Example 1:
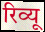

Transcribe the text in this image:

रिव्‍यू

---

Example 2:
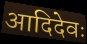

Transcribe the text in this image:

आदिदेवः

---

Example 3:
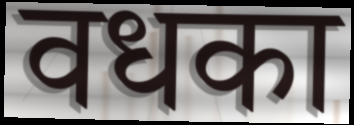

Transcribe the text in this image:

वधका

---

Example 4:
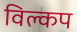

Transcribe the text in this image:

विल्कप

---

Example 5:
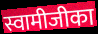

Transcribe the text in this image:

स्वामीजीका